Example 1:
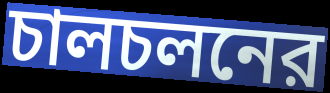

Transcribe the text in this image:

চালচলনের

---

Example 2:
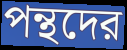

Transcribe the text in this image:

পন্থদের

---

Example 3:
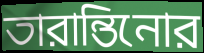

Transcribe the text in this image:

তারান্তিনোর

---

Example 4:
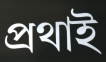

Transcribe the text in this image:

প্রথাই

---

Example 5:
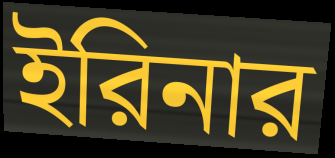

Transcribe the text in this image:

ইরিনার